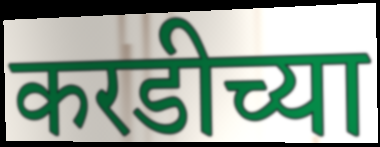
करडीच्या